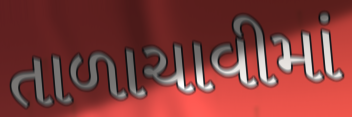
તાળાચાવીમાં